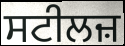
ਸਟੀਲਜ਼